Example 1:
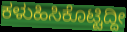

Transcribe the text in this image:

ಕಳುಹಿಸಿಕೊಟ್ಟಿದ್ದೀ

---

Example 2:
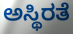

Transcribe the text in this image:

ಅಸ್ಥಿರತೆ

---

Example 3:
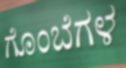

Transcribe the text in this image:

ಗೊಂಬೆಗಳ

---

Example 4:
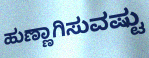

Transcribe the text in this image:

ಹುಣ್ಣಾಗಿಸುವಷ್ಟು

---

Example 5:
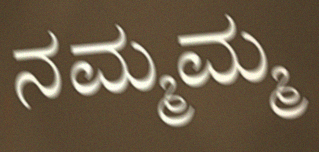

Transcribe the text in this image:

ನಮ್ಮಮ್ಮ